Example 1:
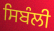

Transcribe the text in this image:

ਸਿਬੰਲੀ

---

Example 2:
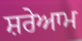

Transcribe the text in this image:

ਸ਼ਰੇਆਮ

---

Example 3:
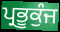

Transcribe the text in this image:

ਪ੍ਰਭੂਕੁੰਜ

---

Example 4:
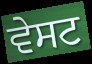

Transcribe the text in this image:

ਵੇਸਟ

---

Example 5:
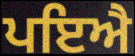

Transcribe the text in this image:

ਪਇਐ